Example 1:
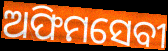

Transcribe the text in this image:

ଅଫିମସେବୀ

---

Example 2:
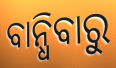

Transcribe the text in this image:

ବାନ୍ଧିବାରୁ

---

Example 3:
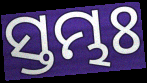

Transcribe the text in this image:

ସ୍ତମ୍ଭଃ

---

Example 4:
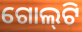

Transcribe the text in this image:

ଗୋଲ୍‍ଟି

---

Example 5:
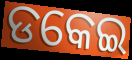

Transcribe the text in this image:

ଡକେଇ